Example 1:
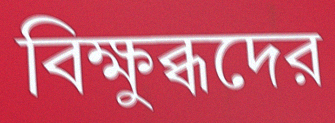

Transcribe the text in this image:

বিক্ষুব্ধদের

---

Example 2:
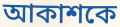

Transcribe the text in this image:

আকাশকে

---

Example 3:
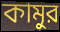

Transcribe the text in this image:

কামুর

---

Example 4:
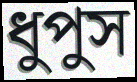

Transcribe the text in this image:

ধুপুস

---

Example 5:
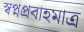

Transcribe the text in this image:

স্বপ্নপ্রবাহমাত্র